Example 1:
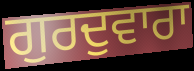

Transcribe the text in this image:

ਗੁਰਦੁਵਾਰਾ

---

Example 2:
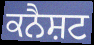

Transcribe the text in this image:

ਕਨੈਸ਼ਟ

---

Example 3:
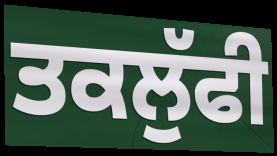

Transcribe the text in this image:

ਤਕਲੁੱਫੀ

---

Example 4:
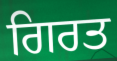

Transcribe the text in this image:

ਗਿਰਤ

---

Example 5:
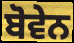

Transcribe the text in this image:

ਬੋਵੇਨ